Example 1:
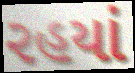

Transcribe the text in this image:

રહયાં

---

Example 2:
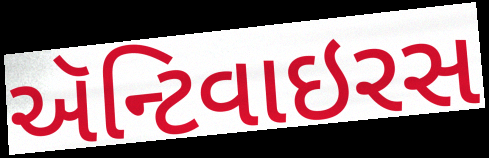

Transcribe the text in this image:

ઍન્ટિવાઇરસ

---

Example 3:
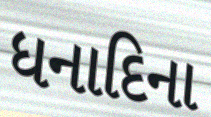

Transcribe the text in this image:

ધનાદિના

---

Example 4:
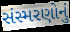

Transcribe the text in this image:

સંસ્મરણોનું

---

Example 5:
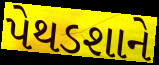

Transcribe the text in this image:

પેથડશાને